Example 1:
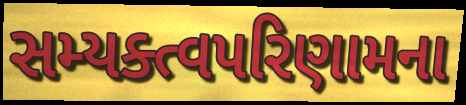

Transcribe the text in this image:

સમ્યક્ત્વપરિણામના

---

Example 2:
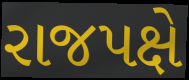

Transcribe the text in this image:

રાજપક્ષે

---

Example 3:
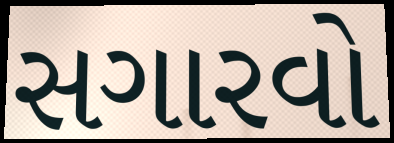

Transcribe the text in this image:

સગારવો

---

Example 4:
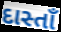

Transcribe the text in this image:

દાસ્તાઁ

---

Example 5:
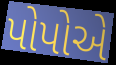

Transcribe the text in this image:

પોપોએ